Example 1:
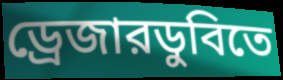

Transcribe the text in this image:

ড্রেজারডুবিতে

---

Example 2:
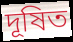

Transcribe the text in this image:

দূষিত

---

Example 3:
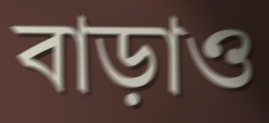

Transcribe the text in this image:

বাড়াও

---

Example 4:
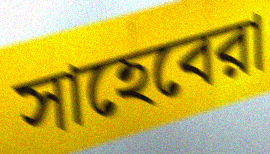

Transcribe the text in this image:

সাহেবেরা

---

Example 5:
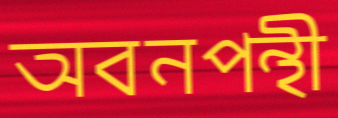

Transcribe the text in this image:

অবনপন্থী